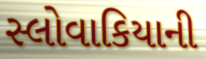
સ્લોવાકિયાની